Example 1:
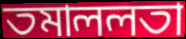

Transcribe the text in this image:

তমাললতা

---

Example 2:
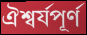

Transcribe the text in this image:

ঐশ্বর্যপূর্ণ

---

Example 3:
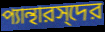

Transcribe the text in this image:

প্যান্থারস্‌দের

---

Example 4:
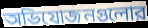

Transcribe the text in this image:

অভিযোজনগুলোর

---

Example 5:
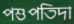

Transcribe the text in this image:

পশুপতিদা